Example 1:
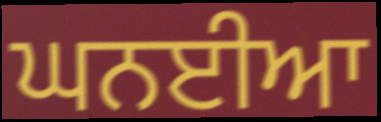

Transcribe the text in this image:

ਘਨਈਆ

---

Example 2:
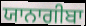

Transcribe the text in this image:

ਯਾਨਾਗੀਬਾ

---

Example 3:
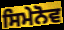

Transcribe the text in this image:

ਸਿਮੇਨੋਵ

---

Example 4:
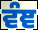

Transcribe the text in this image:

ਵੰਞ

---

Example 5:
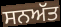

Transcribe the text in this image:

ਸਨਅੱਤ